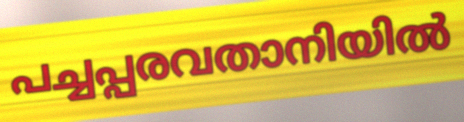
പച്ചപ്പരവതാനിയിൽ